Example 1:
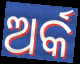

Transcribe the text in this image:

ଅର୍କ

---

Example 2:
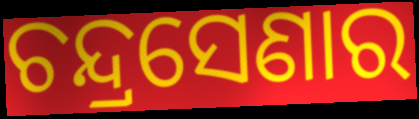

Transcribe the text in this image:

ଚନ୍ଦ୍ରସେଣାର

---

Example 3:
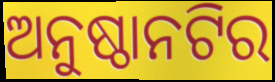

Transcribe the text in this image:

ଅନୁଷ୍ଠାନଟିର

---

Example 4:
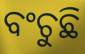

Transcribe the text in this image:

ବଂଚୁଛି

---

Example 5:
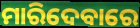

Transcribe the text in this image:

ମାରିଦେବାରେ